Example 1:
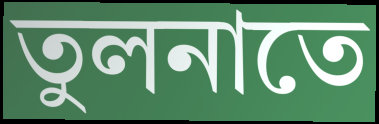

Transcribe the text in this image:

তুলনাতে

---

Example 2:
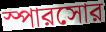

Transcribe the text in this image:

স্পারসোর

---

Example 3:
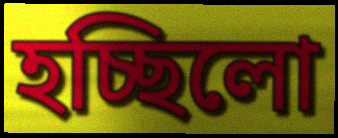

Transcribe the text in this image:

হচ্ছিলো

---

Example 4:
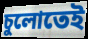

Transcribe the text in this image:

চুলোতেই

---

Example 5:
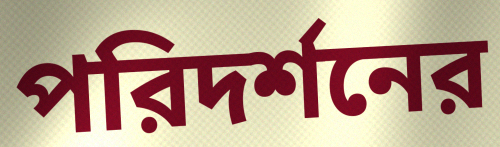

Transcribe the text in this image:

পরিদর্শনের